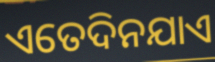
ଏତେଦିନଯାଏ